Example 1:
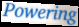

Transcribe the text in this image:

Powering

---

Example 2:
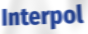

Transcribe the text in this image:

Interpol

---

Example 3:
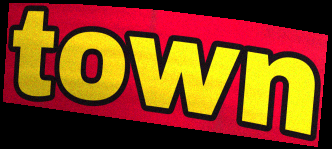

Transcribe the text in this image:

town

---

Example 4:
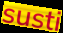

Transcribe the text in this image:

susti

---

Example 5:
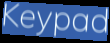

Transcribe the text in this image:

Keypad